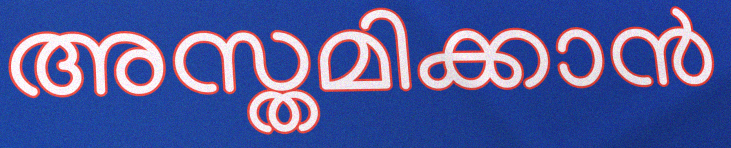
അസ്തമിക്കാൻ